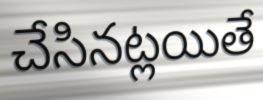
చేసినట్లయితే